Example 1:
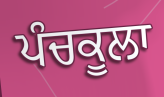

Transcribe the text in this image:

ਪੰਚਕੂਲਾ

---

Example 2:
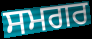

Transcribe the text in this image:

ਸਮਗਰ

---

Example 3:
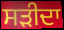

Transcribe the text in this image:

ਸੜੀਦਾ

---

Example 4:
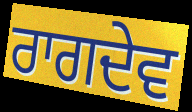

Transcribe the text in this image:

ਰਾਗਦੇਵ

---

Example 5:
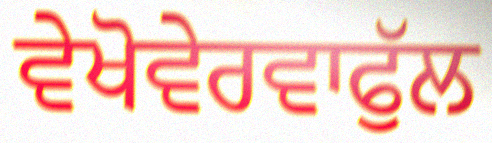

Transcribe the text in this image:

ਵੇਖੋਵੇਰਵਾਫੁੱਲ